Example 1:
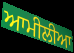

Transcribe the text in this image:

ਆਮੀਲੀਆ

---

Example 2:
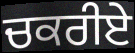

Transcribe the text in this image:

ਚਕਰੀਏ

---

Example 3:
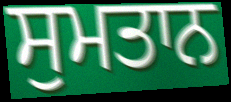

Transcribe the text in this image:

ਸੁਮਤਾਨ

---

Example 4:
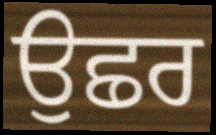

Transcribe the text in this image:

ਉਛਰ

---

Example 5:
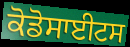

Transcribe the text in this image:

ਕੋਡੋਸਾਈਟਸ